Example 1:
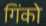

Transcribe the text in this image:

गिंको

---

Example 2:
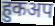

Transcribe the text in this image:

हुकअप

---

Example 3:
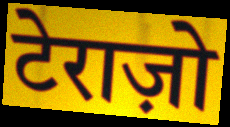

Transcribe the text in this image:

टेराज़ो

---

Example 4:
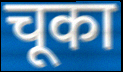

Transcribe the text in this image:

चूका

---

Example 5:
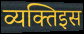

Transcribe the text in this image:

व्यक्तिइस